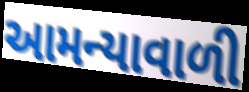
આમન્યાવાળી